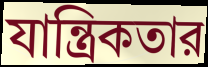
যান্ত্রিকতার